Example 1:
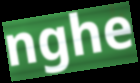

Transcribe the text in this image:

nghe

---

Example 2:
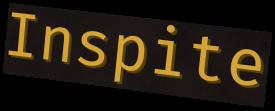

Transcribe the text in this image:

Inspite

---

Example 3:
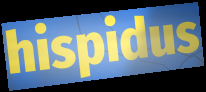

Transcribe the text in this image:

hispidus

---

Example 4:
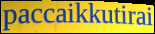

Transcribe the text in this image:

paccaikkutirai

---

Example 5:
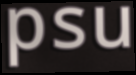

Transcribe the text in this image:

psu